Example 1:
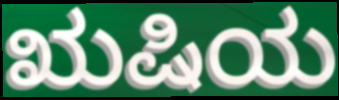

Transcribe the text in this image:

ಋಷಿಯ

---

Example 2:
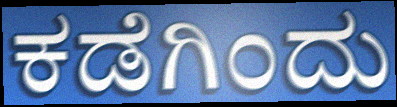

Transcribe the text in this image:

ಕಡೆಗಿಂದು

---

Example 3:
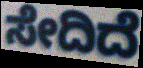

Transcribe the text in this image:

ಸೇದಿದೆ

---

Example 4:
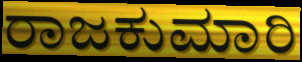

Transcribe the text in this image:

ರಾಜಕುಮಾರಿ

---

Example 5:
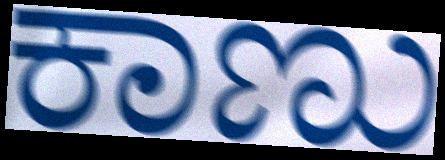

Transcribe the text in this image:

ಕಾಣು